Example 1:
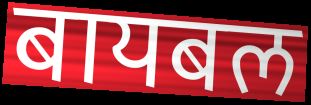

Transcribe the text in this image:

बायबल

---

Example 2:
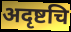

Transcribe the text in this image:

अदृष्टचि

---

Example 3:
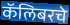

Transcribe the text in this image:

कॅलिबरचे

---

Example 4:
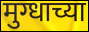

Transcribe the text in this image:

मुग्धाच्या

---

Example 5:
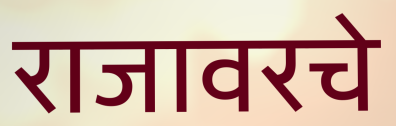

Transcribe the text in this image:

राजावरचे